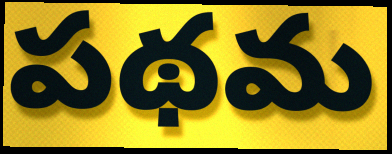
పథమ